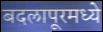
बदलापूरमध्ये